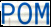
POM